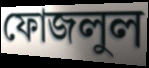
ফোজলুল